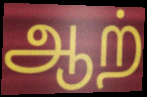
ஆற்